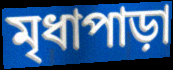
মৃধাপাড়া